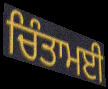
ਚਿੰਤਾਮਈ